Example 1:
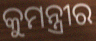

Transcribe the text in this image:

କୁମନ୍ତ୍ରୀର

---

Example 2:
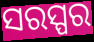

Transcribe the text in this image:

ସରସ୍ପର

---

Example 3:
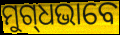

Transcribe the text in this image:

ମୁଗ୍‌ଧଭାବେ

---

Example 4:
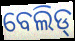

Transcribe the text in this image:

ବେଲିଡ୍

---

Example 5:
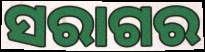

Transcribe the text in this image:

ସରାଗର